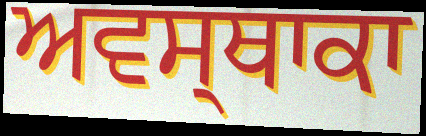
ਅਵਸ੍ਥਾਕਾ